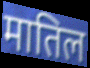
मातिल